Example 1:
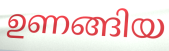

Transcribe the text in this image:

ഉണങ്ങിയ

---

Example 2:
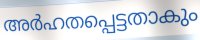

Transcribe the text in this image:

അർഹതപ്പെട്ടതാകും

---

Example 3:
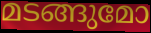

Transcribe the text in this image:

മടങ്ങുമോ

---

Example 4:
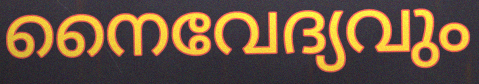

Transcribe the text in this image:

നൈവേദ്യവും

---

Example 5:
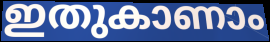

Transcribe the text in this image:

ഇതുകാണാം